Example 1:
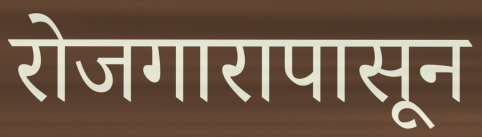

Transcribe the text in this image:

रोजगारापासून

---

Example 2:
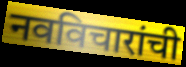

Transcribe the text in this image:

नवविचारांची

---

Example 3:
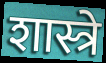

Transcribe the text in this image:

शास्त्रे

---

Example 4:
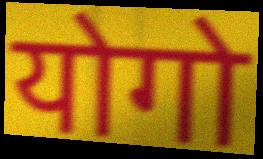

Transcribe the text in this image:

योगो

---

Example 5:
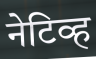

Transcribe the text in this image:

नेटिव्ह